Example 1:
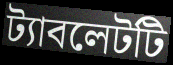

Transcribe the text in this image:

ট্যাবলেটটি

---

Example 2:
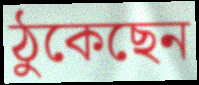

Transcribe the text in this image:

ঠুকেছেন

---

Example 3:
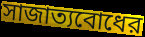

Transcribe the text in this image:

সাজাত্যবোধের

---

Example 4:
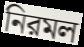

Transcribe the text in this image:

নিরমল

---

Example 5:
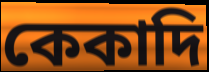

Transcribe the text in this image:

কেকাদি